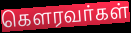
கெளரவர்கள்